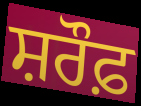
ਸ਼ਰੌਫ਼